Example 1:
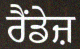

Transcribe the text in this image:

ਰੈਂਡੇਜ਼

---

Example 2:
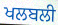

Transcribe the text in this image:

ਖਲਬਲੀ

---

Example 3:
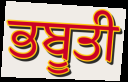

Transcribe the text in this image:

ਭਬੂਤੀ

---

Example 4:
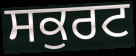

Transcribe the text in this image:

ਸਕੁਰਟ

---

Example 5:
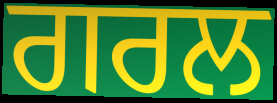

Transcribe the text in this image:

ਗਰਲ